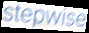
stepwise